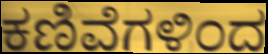
ಕಣಿವೆಗಳಿಂದ